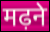
मढ़ने